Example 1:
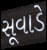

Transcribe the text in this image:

સૂવાડે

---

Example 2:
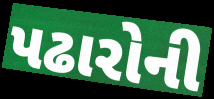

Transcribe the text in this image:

પઢારોની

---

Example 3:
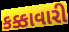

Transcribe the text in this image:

કક્કાવારી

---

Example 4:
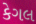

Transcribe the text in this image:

કેગલ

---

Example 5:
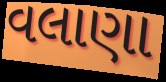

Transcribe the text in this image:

વલાણા